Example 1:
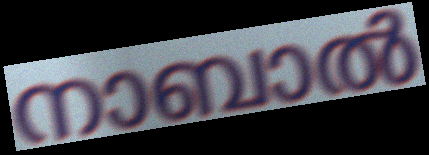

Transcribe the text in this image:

നാബാൽ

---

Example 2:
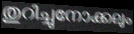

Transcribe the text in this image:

തുറിച്ചുനോക്കലും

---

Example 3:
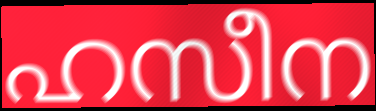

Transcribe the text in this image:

ഹസീന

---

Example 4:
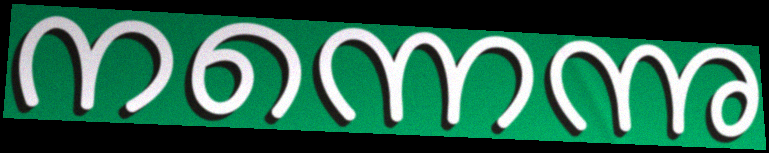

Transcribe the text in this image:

നന്നെന്നു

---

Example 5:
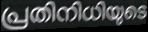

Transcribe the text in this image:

പ്രതിനിധിയുടെ